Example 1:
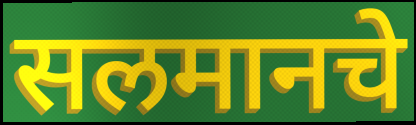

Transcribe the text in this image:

सलमानचे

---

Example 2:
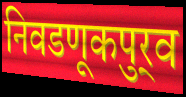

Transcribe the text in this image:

निवडणूकपुर्व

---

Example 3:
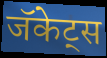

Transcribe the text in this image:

जॅकेट्स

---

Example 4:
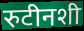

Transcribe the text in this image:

रुटीनशी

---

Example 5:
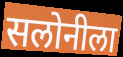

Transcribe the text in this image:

सलोनीला